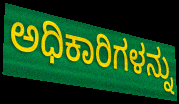
ಅಧಿಕಾರಿಗಳನ್ನು